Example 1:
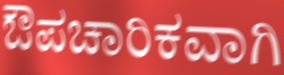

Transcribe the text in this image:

ಔಪಚಾರಿಕವಾಗಿ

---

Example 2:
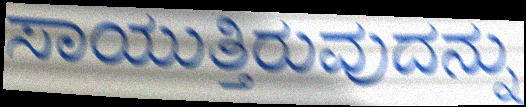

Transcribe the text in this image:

ಸಾಯುತ್ತಿರುವುದನ್ನು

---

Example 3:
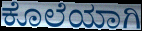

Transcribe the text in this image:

ಕೊಲೆಯಾಗಿ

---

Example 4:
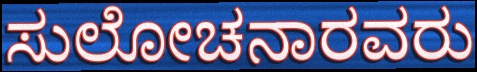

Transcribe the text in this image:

ಸುಲೋಚನಾರವರು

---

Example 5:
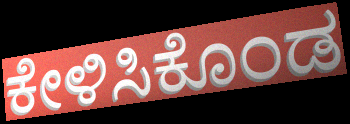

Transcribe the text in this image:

ಕೇಳಿಸಿಕೊಂಡ